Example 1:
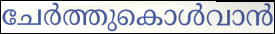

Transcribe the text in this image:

ചേർത്തുകൊൾവാൻ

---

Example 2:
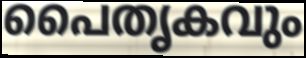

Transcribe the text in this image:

പൈതൃകവും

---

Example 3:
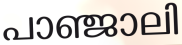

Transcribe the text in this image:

പാഞ്ജാലി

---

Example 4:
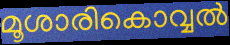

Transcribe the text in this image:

മൂശാരികൊവ്വൽ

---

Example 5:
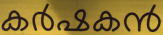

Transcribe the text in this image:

കർഷകൻ